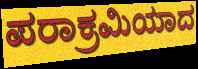
ಪರಾಕ್ರಮಿಯಾದ